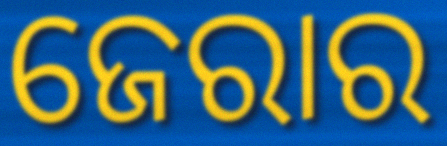
ଜେରାର